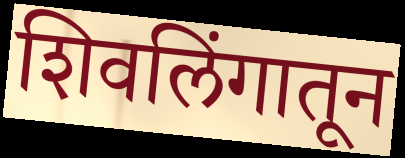
शिवलिंगातून